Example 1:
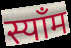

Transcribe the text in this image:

स्याँम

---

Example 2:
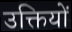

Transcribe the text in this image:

उक्तियों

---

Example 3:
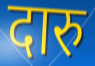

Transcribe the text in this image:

दारु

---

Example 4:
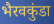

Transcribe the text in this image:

भैरवकुंडा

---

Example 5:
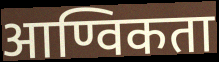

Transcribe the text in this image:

आण्विकता